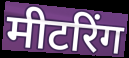
मीटरिंग